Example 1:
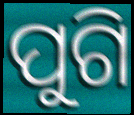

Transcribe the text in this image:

ପୁଗି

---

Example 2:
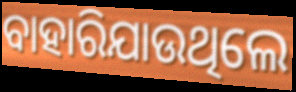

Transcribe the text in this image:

ବାହାରିଯାଉଥିଲେ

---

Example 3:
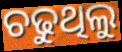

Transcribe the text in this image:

ଚଢୁଥିଲୁ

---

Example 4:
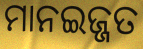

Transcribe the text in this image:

ମାନଇଜ୍ଜତ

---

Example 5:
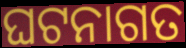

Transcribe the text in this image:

ଘଟନାଗତ